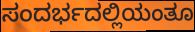
ಸಂದರ್ಭದಲ್ಲಿಯಂತೂ